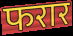
फरार